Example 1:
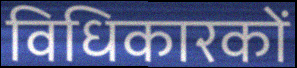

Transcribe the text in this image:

विधिकारकों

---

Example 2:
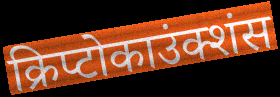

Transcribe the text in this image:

क्रिप्टोकाउंक्शंस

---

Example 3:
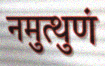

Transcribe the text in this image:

नमुत्थुणं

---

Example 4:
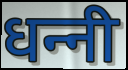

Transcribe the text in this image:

धन्नी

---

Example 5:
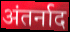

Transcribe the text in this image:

अंतर्नाद